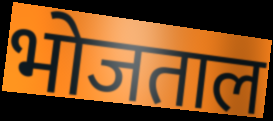
भोजताल